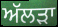
ਅੱਲੜਾ